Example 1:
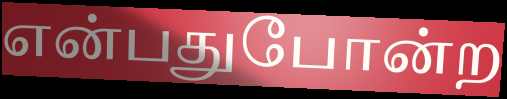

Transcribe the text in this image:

என்பதுபோன்ற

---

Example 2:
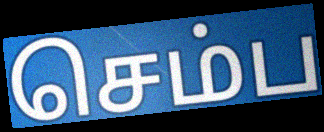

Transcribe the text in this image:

செம்ப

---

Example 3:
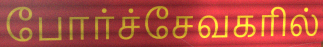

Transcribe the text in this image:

போர்ச்சேவகரில்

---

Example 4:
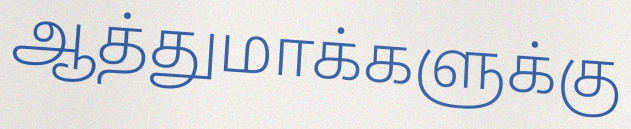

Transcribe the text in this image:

ஆத்துமாக்களுக்கு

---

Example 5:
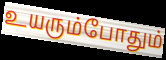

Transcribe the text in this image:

உயரும்போதும்